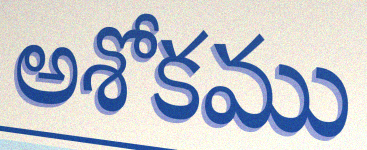
అశోకము